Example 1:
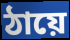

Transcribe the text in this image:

ঠায়ে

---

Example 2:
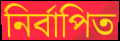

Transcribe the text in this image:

নিৰ্বাপিত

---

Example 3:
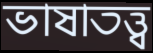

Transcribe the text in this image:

ভাষাতত্ত্ব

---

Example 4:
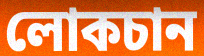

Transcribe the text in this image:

লোকচান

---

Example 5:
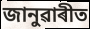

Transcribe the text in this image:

জানুৱাৰীত